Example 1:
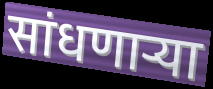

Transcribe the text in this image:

सांधणार्‍या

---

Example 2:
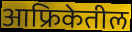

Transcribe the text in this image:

आफ्रिकेतील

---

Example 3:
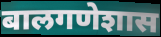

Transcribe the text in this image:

बालगणेशास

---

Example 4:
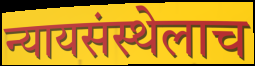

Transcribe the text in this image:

न्यायसंस्थेलाच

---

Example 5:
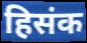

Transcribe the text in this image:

हिसंक